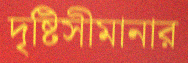
দৃষ্টিসীমানার